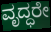
ವೃದ್ಧರೇ